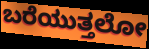
ಬರೆಯುತ್ತಲೋ